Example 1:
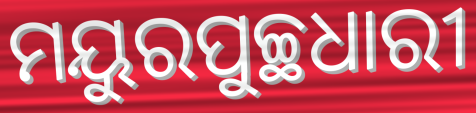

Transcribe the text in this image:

ମୟୁରପୁଚ୍ଛଧାରୀ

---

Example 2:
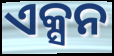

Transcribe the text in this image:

ଏକ୍ସନ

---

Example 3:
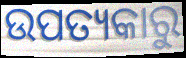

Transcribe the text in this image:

ଉପତ୍ୟକାରୁ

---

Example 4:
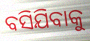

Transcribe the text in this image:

ବସିଯିବାକୁ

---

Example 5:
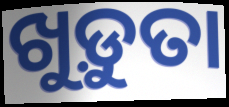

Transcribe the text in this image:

ଖୁଡ଼ୁତା